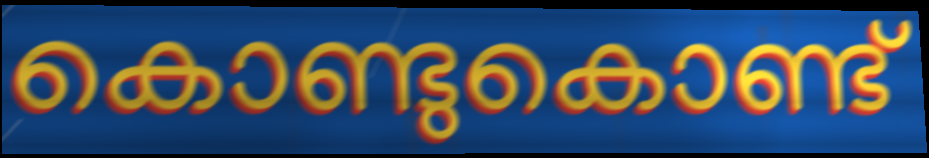
കൊണ്ടുകൊണ്ട്